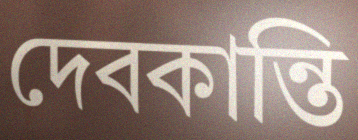
দেবকান্তি